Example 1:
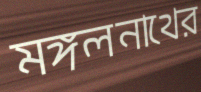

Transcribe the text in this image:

মঙ্গলনাথের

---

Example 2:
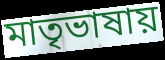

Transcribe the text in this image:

মাতৃভাষায়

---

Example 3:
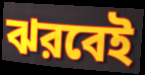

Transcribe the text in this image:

ঝরবেই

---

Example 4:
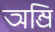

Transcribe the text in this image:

অম্রি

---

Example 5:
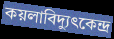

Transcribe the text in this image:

কয়লাবিদ্যুৎকেন্দ্র